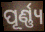
ପୂର୍ଣ୍ଣ୍ୟ